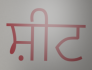
ਸ਼ੀਟ